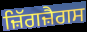
ਜ਼ਿੱਗਜ਼ੈਗਸ